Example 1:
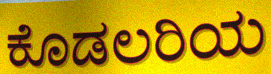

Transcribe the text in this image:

ಕೊಡಲರಿಯ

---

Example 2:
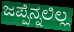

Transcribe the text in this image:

ಜಪ್ಪೆನ್ನಲಿಲ್ಲ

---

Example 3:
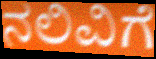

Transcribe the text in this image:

ನಲಿವಿಗೆ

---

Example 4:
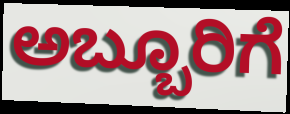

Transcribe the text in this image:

ಅಬ್ಬೂರಿಗೆ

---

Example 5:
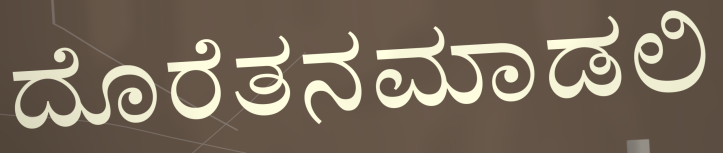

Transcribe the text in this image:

ದೊರೆತನಮಾಡಲಿ